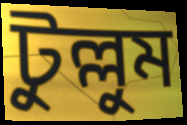
টুল্লুম